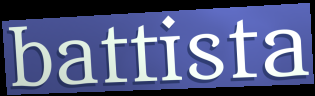
battista